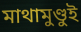
মাথামুণ্ডুই